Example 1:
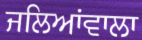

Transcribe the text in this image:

ਜਲਿਆਂਵਾਲਾ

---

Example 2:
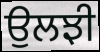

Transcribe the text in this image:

ਉਲਝੀ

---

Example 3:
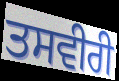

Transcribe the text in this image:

ਤਸਵੀਰੀ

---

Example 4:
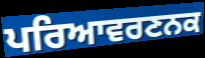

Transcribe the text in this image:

ਪਰਿਆਵਰਣਨਕ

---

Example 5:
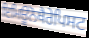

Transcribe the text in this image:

ਇਮਿਊਨੋਥੈਰੇਪਿਸਟ